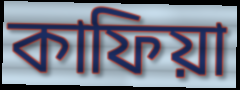
কাফিয়া